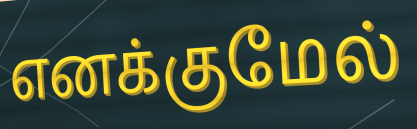
எனக்குமேல்